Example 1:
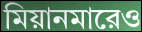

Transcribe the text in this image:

মিয়ানমারেও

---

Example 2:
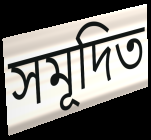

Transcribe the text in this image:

সমূদিত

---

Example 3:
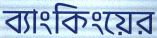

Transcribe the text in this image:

ব্যাংকিংয়ের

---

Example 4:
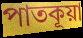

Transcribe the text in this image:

পাতকূয়া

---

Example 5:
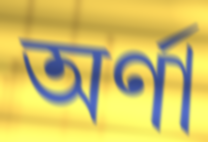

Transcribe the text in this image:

অর্ণা